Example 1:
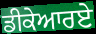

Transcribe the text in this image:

ਡੀਕੇਆਰਏ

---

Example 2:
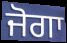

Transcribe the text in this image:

ਜੋਗਾ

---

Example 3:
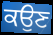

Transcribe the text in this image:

ਕਉਣ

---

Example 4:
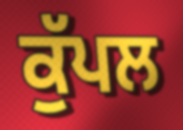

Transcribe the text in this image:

ਕੁੱਪਲ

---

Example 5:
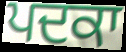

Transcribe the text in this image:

ਪਦਕਾ